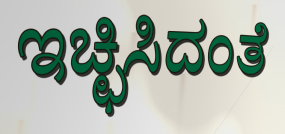
ಇಚ್ಛಿಸಿದಂತೆ